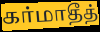
கர்மாதீத்